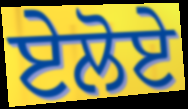
ਏਲੋਏ